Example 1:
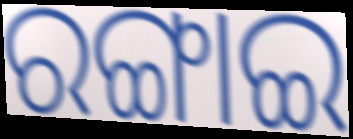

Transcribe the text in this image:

ରଙ୍ଗାଇ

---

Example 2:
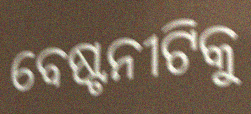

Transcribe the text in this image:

ବେଷ୍ଟନୀଟିକୁ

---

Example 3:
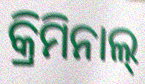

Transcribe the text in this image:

କ୍ରିମିନାଲ୍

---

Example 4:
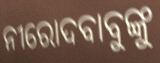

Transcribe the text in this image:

ନୀରୋଦବାବୁଙ୍କୁ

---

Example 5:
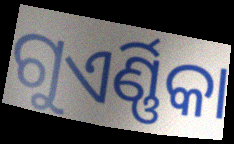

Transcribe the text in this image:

ଗୁଏର୍ଣ୍ଣିକା